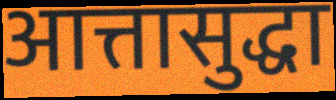
आत्तासुद्धा